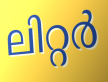
ലിറ്റർ